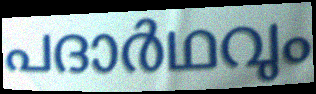
പദാർഥവും